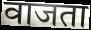
वाजता